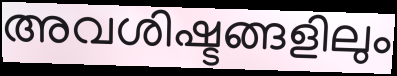
അവശിഷ്ടങ്ങളിലും